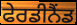
ਫੇਰਡੀਨੈਂਡ